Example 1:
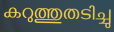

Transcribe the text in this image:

കറുത്തുതടിച്ചു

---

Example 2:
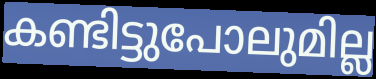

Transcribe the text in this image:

കണ്ടിട്ടുപോലുമില്ല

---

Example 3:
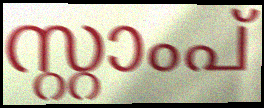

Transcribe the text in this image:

സ്റ്റാംപ്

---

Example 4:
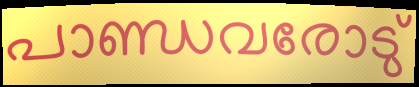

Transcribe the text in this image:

പാണ്ഡവരോടു്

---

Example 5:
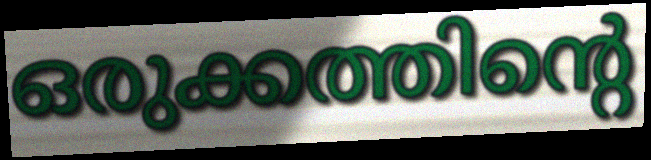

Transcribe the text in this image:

ഒരുക്കത്തിന്റെ